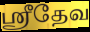
ஸ்ரீதேவ